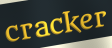
cracker